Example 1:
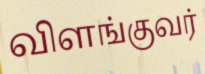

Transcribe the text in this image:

விளங்குவர்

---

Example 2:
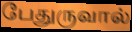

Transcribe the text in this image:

பேதுருவால்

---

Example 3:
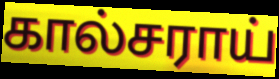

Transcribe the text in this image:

கால்சராய்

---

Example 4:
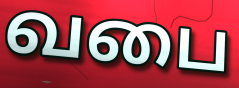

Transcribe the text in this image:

வபை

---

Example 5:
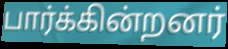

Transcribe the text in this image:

பார்க்கின்றனர்